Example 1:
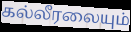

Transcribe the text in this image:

கல்லீரலையும்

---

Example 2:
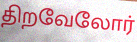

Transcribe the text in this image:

திறவேலோர்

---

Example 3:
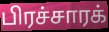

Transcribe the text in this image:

பிரச்சாரக்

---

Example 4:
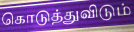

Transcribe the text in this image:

கொடுத்துவிடும்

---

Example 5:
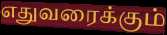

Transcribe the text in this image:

எதுவரைக்கும்